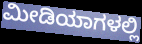
ಮೀಡಿಯಾಗಳಲ್ಲಿ